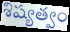
శిష్యత్వం